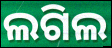
ଲଗିଲ